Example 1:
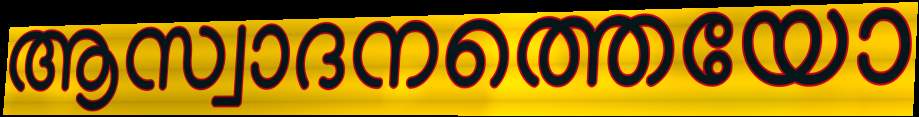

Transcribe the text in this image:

ആസ്വാദനത്തെയോ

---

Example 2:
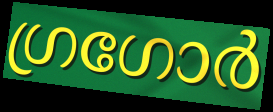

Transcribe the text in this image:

ഗ്രഗോർ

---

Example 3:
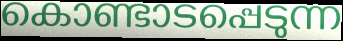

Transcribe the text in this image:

കൊണ്ടാടപ്പെടുന്ന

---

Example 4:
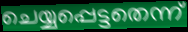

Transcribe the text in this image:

ചെയ്യപ്പെട്ടതെന്ന്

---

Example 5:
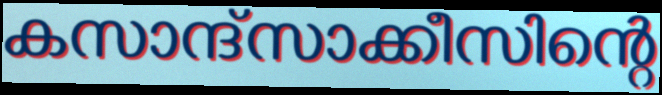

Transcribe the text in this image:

കസാന്ദ്സാക്കീസിന്റെ